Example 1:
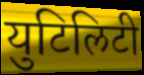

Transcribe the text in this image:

युटिलिटी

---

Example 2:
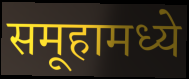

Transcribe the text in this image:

समूहामध्ये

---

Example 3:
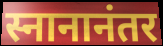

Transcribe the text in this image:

स्नानानंतर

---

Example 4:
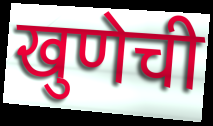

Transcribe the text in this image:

खुणेची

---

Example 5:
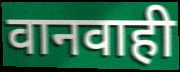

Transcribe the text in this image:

वानवाही